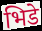
भिडे